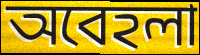
অবেহলা